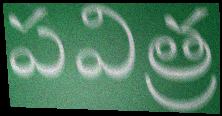
పవిత్ర